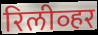
रिलीव्हर